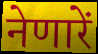
नेणारें